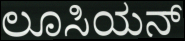
ಲೂಸಿಯನ್